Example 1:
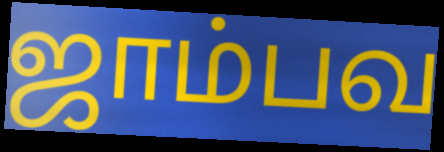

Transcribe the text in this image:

ஜாம்பவ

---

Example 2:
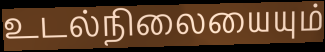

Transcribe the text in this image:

உடல்நிலையையும்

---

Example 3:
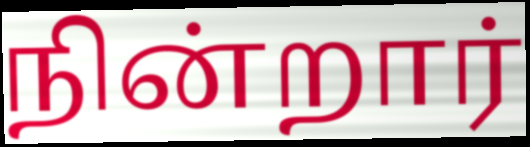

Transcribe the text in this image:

நின்றார்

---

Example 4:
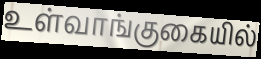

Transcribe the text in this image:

உள்வாங்குகையில்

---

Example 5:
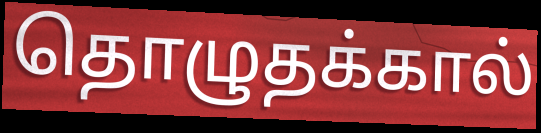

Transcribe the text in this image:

தொழுதக்கால்